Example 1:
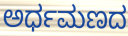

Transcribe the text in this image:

ಅರ್ಧಮಣದ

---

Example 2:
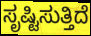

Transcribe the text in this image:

ಸೃಷ್ಟಿಸುತ್ತಿದೆ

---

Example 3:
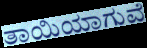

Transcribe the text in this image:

ತಾಯಿಯಾಗುವೆ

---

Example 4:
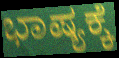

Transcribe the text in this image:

ಭಾಷ್ಯಕ್ಕೆ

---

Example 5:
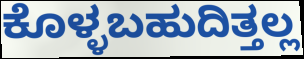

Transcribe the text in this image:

ಕೊಳ್ಳಬಹುದಿತ್ತಲ್ಲ